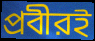
প্রবীরই